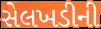
સેલખડીની